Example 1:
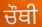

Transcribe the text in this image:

ਚੌਥੀ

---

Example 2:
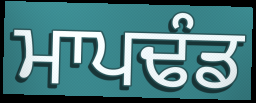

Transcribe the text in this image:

ਮਾਪਢੰਡ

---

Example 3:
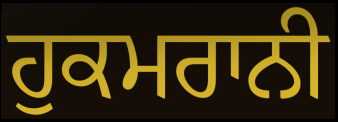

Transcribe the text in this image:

ਹੁਕਮਰਾਨੀ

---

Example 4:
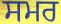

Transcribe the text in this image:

ਸਮਰ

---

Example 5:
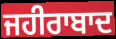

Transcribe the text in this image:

ਜਹੀਰਾਬਾਦ